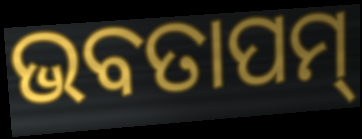
ଭବତାପମ୍